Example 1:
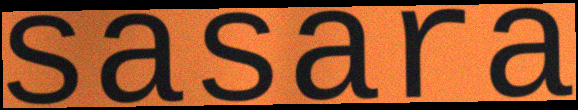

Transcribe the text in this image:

sasara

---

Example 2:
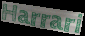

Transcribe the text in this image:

Harrari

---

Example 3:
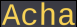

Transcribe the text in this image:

Acha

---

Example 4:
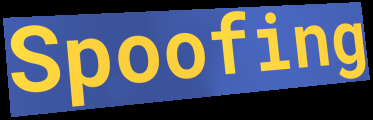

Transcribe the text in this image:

Spoofing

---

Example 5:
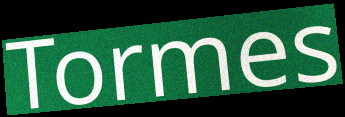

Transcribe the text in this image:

Tormes